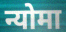
न्योमा